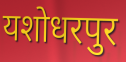
यशोधरपुर